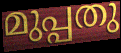
മുപ്പതു